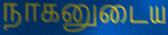
நாகனுடைய